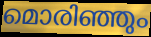
മൊരിഞ്ഞും